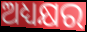
ଅଧ୍ୟକ୍ଷର